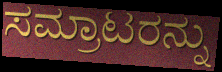
ಸಮ್ರಾಟರನ್ನು